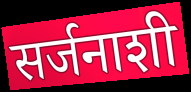
सर्जनाशी